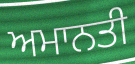
ਅਮਾਨਤੀ